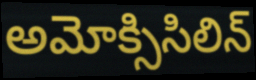
అమోక్సిసిలిన్